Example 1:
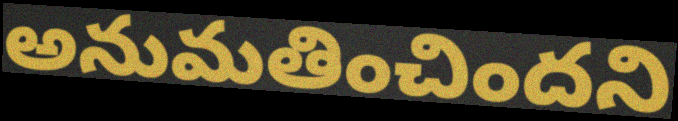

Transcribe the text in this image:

అనుమతించిందని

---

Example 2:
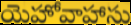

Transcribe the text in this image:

యెహోవాహాసు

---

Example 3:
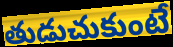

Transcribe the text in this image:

తుడుచుకుంటే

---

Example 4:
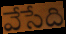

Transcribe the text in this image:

వేసేది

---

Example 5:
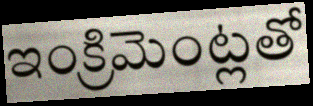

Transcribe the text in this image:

ఇంక్రిమెంట్లతో